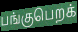
பங்குபெறக்